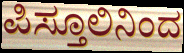
ಪಿಸ್ತೂಲಿನಿಂದ